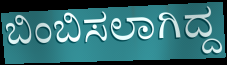
ಬಿಂಬಿಸಲಾಗಿದ್ದ